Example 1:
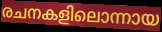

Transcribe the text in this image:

രചനകളിലൊന്നായ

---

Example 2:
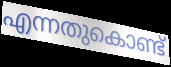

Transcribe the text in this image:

എന്നതുകൊണ്ട്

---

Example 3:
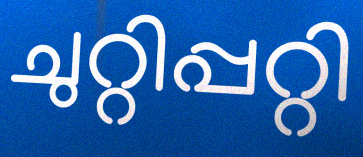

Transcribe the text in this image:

ചുറ്റിപ്പറ്റി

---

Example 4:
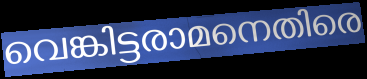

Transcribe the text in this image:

വെങ്കിട്ടരാമനെതിരെ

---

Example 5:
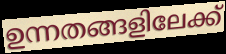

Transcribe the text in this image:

ഉന്നതങ്ങളിലേക്ക്